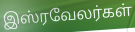
இஸ்ரவேலர்கள்